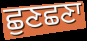
ਛੁਣਛਣਾ